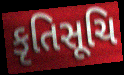
કૃતિસૂચિ